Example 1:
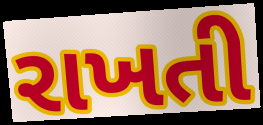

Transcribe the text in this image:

રાખતી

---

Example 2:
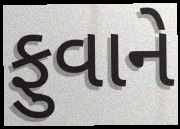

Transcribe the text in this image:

ફુવાને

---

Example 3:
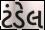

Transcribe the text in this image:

ટંડેલ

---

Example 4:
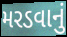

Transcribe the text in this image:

મરડવાનું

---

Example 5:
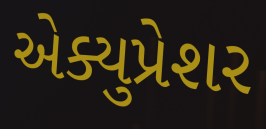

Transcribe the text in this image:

એક્યુપ્રેશર